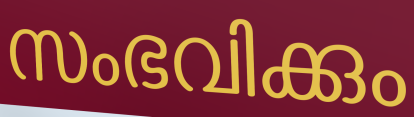
സംഭവിക്കും